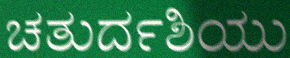
ಚತುರ್ದಶಿಯು